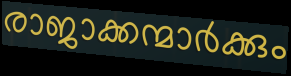
രാജാക്കന്മാർക്കും